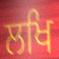
ਲਖਿ